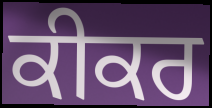
ਕੀਕਰ